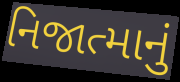
નિજાત્માનું